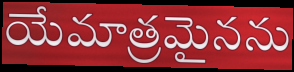
యేమాత్రమైనను